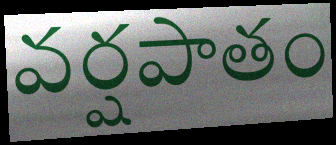
వర్షపాతం